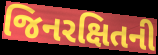
જિનરક્ષિતની